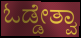
ಓಡ್ಡೇತ್ವಾ